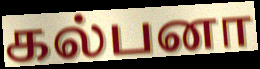
கல்பனா